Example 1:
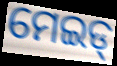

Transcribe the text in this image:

ମେଇଡ୍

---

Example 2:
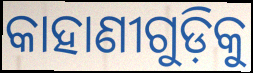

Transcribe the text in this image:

କାହାଣୀଗୁଡ଼ିକୁ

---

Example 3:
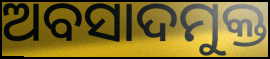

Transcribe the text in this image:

ଅବସାଦମୁକ୍ତ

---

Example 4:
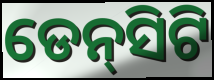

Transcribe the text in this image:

ଡେନ୍‌ସିଟି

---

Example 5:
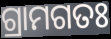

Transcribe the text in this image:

ଗ୍ରାମଗତଃ